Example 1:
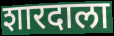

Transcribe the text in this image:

शारदाला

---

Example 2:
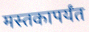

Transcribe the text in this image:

मस्तकापर्यंत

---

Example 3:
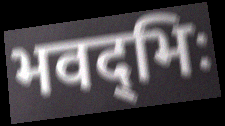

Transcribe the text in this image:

भवद्‌भिः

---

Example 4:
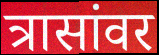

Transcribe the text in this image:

त्रासांवर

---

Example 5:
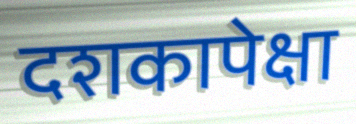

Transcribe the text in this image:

दशकापेक्षा